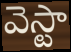
వెస్టా